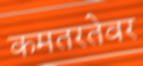
कमतरतेवर